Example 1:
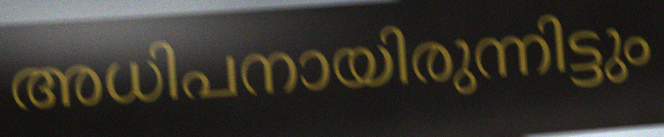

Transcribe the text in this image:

അധിപനായിരുന്നിട്ടും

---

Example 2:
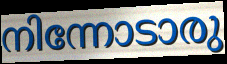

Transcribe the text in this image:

നിന്നോടാരു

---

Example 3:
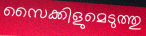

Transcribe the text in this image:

സൈക്കിളുമെടുത്തു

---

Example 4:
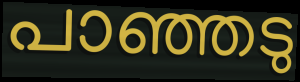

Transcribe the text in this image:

പാഞ്ഞടു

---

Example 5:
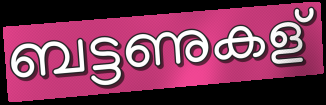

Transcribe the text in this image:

ബട്ടണുകള്